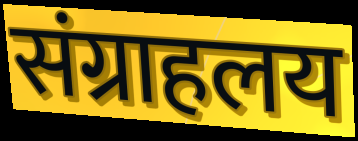
संग्राहलय